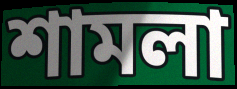
শামলা